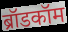
ब्रॉडकॉम